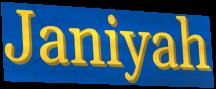
Janiyah